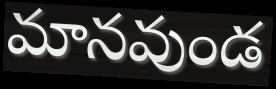
మానవుండ